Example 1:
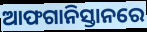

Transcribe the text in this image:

ଆଫଗାନିସ୍ତାନରେ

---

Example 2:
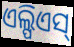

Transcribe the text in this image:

ଏଲ୍ପିଏସ୍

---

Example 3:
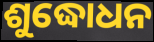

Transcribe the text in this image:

ଶୁଦ୍ଧୋଧନ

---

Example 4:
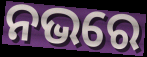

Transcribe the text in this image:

ନଭରେ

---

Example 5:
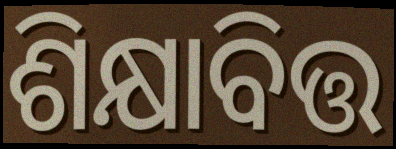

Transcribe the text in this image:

ଶିକ୍ଷାବିତ୍ତ